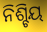
ନିଶ୍ଚିୟ